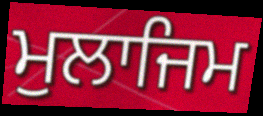
ਮੁਲਾਜਿਮ